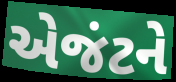
એજંટને